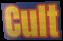
Cult